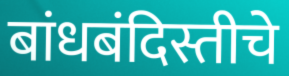
बांधबंदिस्तीचे